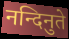
नन्दिनुते